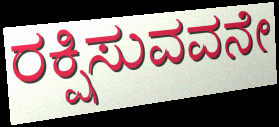
ರಕ್ಷಿಸುವವನೇ